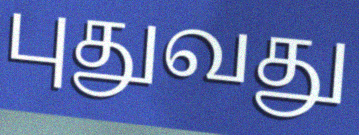
புதுவது